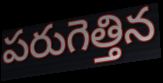
పరుగెత్తిన